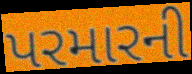
પરમારની